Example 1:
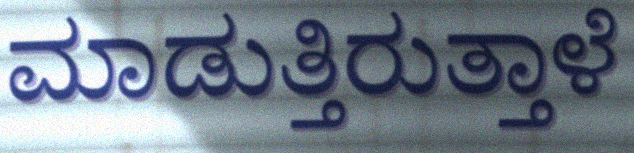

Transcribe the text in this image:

ಮಾಡುತ್ತಿರುತ್ತಾಳೆ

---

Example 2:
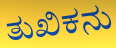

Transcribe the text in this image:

ತುಖಿಕನು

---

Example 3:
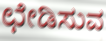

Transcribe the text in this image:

ಛೇಡಿಸುವ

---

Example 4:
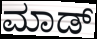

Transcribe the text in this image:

ಮಾಡ್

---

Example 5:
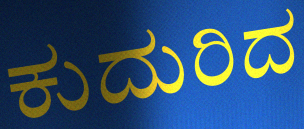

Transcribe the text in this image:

ಕುದುರಿದ